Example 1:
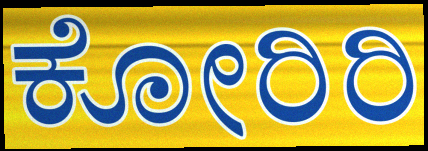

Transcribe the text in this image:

ಕೋರಿರಿ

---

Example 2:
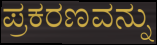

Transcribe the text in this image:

ಪ್ರಕರಣವನ್ನು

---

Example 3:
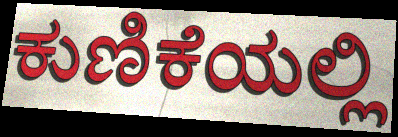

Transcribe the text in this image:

ಕುಣಿಕೆಯಲ್ಲಿ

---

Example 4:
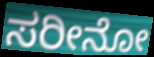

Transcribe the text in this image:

ಸರೀನೋ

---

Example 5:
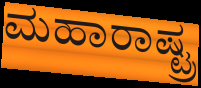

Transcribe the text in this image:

ಮಹಾರಾಷ್ಟ್ರ